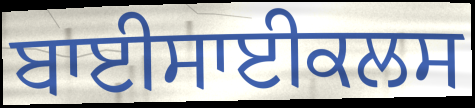
ਬਾਈਸਾਈਕਲਸ